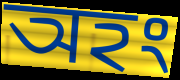
অহং